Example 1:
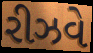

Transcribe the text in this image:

રીઝવે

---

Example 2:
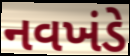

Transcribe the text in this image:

નવખંડે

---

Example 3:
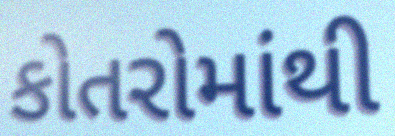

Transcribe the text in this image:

કોતરોમાંથી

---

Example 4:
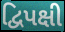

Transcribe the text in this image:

દ્વિપક્ષી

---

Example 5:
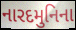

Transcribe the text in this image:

નારદમુનિના